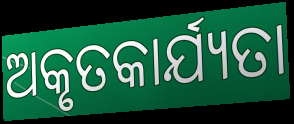
ଅକୃତକାର୍ଯ୍ୟତା